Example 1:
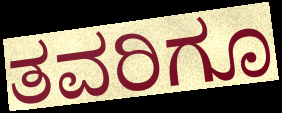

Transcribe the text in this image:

ತವರಿಗೂ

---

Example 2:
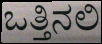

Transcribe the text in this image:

ಒತ್ತಿನಲಿ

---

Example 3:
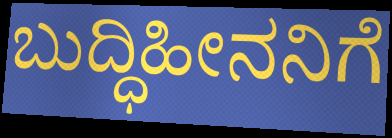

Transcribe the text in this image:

ಬುದ್ಧಿಹೀನನಿಗೆ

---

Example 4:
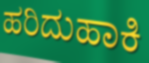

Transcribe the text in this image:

ಹರಿದುಹಾಕಿ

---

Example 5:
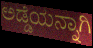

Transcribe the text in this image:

ಅಡ್ಡೆಯನ್ನಾಗಿ